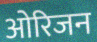
ओरिजन